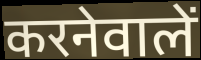
करनेवालें